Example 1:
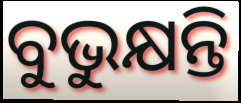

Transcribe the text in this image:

ବୁଭୁକ୍ଷନ୍ତି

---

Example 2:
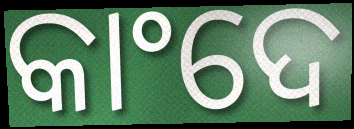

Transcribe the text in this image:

କାଂଦେ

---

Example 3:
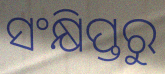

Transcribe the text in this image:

ସଂକ୍ଷିପ୍ତରୁ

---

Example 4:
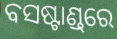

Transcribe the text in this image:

ବସଷ୍ଟାଣ୍ଡ୍‌ରେ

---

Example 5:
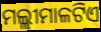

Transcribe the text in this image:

ମଲ୍ଲୀମାଳଟିଏ